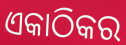
ଏକାଠିକର